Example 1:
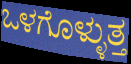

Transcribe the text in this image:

ಒಳಗೊಳ್ಳುತ್ತ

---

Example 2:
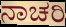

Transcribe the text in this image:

ನಾಚರಿ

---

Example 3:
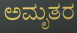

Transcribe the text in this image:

ಅಮೃತರ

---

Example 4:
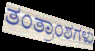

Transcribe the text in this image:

ತಂತ್ರಾಂಶಗಳು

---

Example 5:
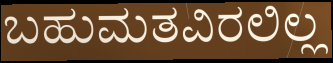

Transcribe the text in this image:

ಬಹುಮತವಿರಲಿಲ್ಲ